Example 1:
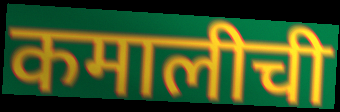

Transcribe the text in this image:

कमालीची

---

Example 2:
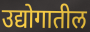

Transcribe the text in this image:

उद्योगातील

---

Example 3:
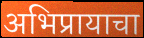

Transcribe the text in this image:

अभिप्रायाचा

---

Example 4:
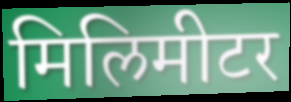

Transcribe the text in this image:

मिलिमीटर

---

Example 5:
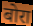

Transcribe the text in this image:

बोरा